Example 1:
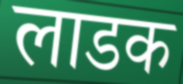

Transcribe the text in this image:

लाडक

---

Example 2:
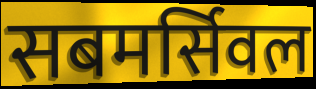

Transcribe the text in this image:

सबमर्सिवल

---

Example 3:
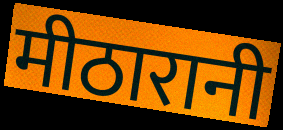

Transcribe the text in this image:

मीठारानी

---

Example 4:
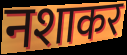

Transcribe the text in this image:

नशाकर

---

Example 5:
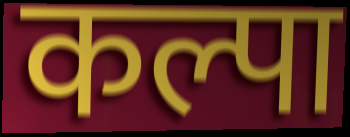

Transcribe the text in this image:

कल्पा